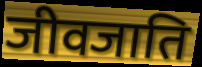
जीवजाति